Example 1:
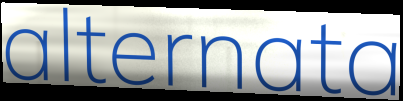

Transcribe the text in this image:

alternata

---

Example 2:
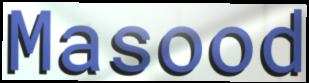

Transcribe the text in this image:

Masood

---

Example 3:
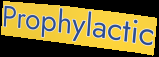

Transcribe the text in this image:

Prophylactic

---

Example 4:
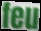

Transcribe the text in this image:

feu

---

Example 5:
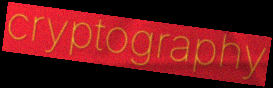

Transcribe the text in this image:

cryptography